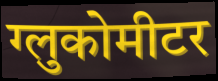
ग्लुकोमीटर